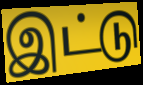
இட்டு